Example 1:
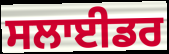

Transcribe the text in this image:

ਸਲਾਈਡਰ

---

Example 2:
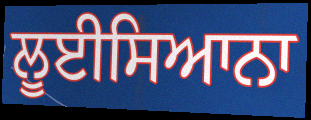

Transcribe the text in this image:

ਲੂਈਸਿਆਨਾ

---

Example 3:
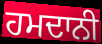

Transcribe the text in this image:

ਹਮਦਾਨੀ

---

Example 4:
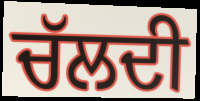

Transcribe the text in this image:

ਚੱਲਦੀ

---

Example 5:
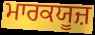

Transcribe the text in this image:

ਮਾਰਕਯੂਜ਼